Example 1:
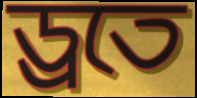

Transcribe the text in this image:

ড্রতে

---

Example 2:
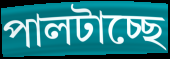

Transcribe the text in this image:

পালটাচ্ছে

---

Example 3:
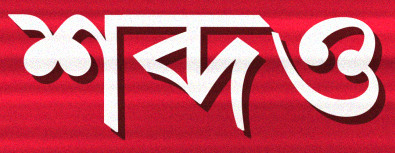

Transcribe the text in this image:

শব্দও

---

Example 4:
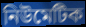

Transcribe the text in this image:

নিউমেটিক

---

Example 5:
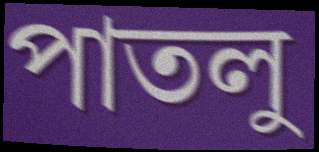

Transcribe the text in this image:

পাতলু